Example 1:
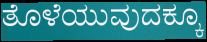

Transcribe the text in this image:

ತೊಳೆಯುವುದಕ್ಕೂ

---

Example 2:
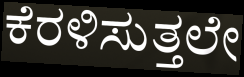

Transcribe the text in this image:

ಕೆರಳಿಸುತ್ತಲೇ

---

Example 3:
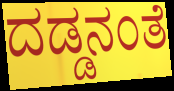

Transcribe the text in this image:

ದಡ್ಡನಂತೆ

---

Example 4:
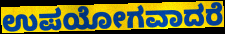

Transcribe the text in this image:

ಉಪಯೋಗವಾದರೆ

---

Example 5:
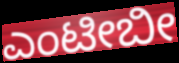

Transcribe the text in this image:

ಎಂಟೀಬೀ